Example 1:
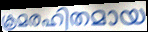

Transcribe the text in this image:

ക്രമരഹിതമായ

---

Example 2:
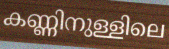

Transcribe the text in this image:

കണ്ണിനുള്ളിലെ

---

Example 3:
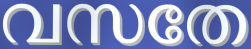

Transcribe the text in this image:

വസതേ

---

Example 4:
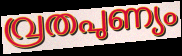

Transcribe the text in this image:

വ്രതപുണ്യം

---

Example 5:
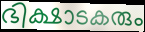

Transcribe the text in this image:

ഭിക്ഷാടകരും